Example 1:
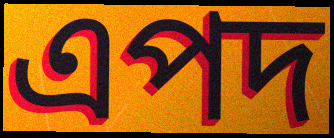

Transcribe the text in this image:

এপদ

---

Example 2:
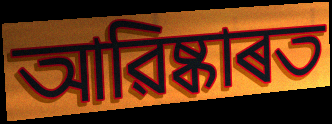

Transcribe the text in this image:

আৱিষ্কাৰত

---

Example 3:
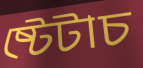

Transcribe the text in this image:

ষ্টেটাচ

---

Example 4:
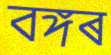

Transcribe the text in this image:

বঙ্গৰ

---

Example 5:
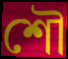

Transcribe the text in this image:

শৌ